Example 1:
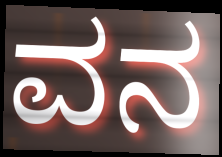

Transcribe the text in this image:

ವನ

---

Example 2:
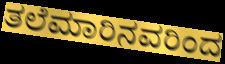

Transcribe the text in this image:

ತಲೆಮಾರಿನವರಿಂದ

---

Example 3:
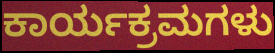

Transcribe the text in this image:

ಕಾರ್ಯಕ್ರಮಗಳು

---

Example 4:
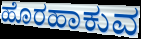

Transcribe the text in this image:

ಹೊರಹಾಕುವ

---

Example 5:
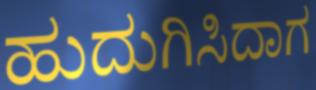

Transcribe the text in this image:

ಹುದುಗಿಸಿದಾಗ